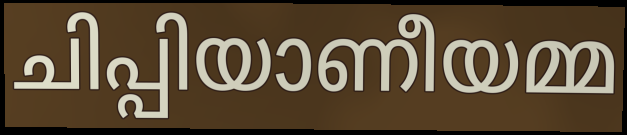
ചിപ്പിയാണീയമ്മ